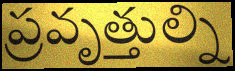
ప్రవృత్తుల్ని